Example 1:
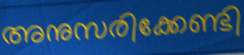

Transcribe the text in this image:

അനുസരിക്കേണ്ടി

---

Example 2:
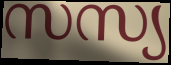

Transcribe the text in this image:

സസ്യ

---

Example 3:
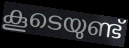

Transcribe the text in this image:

കൂടെയുണ്ട്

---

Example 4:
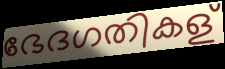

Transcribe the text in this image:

ഭേദഗതികള്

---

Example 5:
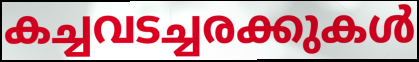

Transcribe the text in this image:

കച്ചവടച്ചരക്കുകൾ